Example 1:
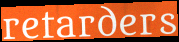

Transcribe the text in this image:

retarders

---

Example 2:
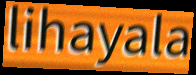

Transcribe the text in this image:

lihayala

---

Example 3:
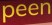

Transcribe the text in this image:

peen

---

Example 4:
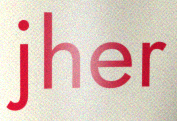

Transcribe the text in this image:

jher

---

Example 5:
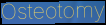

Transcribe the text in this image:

Osteotomy